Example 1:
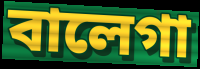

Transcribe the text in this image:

বালেগা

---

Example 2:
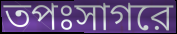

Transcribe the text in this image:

তপঃসাগরে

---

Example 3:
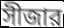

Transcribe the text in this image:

সীজার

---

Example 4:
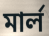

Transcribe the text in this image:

মার্ল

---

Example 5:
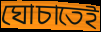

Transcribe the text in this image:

ঘোচাতেই